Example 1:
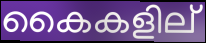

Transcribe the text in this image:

കൈകളില്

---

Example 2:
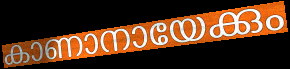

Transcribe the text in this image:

കാണാനായേക്കും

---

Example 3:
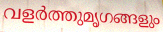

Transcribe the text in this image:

വളർത്തുമൃഗങ്ങളും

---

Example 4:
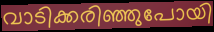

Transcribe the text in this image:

വാടിക്കരിഞ്ഞുപോയി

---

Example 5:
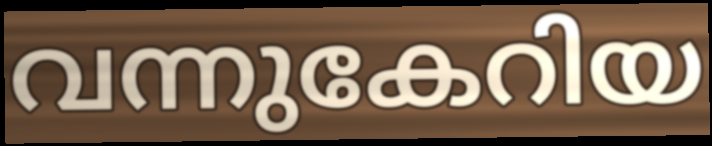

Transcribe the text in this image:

വന്നുകേറിയ